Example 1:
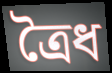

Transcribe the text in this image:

ত্রৈধ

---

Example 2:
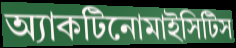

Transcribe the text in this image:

অ্যাকটিনোমাইসিটিস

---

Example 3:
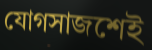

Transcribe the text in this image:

যোগসাজশেই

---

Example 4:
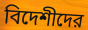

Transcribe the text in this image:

বিদেশীদের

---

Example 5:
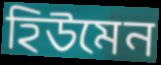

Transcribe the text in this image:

হিউমেন